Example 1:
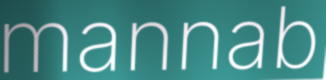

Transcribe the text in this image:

mannab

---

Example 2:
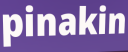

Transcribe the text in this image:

pinakin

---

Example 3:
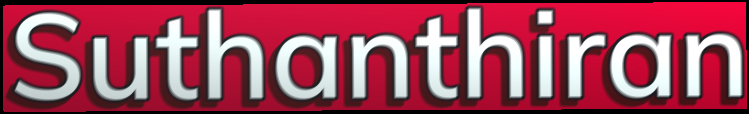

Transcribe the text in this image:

Suthanthiran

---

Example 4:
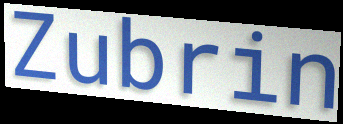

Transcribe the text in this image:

Zubrin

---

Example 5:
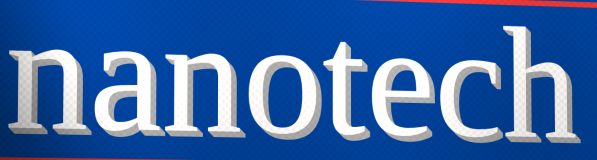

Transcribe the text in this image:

nanotech